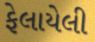
ફેલાયેલી